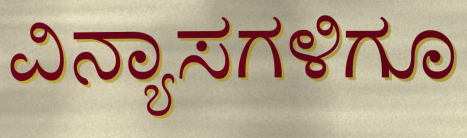
ವಿನ್ಯಾಸಗಳಿಗೂ